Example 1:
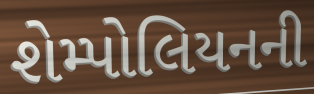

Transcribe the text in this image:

શેમ્પોલિયનની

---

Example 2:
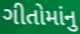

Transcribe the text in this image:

ગીતોમાંનુ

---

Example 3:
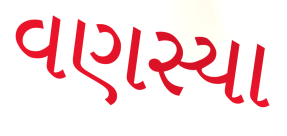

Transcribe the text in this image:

વણસ્યા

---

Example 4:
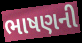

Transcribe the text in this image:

ભાષણની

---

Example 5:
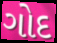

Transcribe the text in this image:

ગોદ